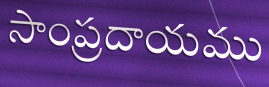
సాంప్రదాయము